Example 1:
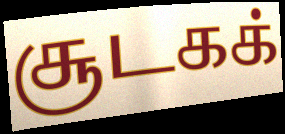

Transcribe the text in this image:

சூடகக்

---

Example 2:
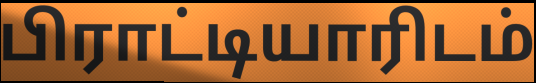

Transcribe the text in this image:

பிராட்டியாரிடம்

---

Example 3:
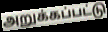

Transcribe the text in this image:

அறுக்கப்பட்டு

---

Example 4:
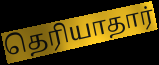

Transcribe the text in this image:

தெரியாதார்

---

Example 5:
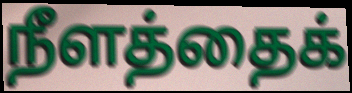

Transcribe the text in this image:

நீளத்தைக்